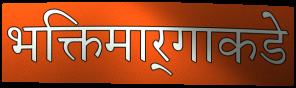
भक्तिमार्गाकडे